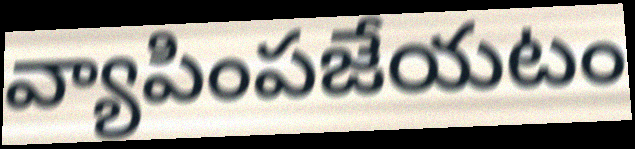
వ్యాపింపజేయటం